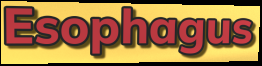
Esophagus